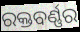
ରକ୍ତବର୍ଣ୍ଣର